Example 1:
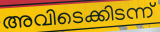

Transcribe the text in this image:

അവിടെക്കിടന്ന്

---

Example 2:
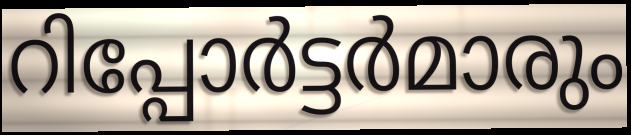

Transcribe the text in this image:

റിപ്പോർട്ടർമാരും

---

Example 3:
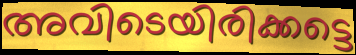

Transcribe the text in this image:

അവിടെയിരിക്കട്ടെ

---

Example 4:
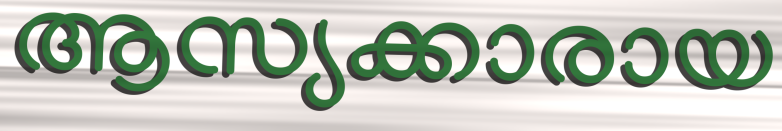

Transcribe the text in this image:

ആസ്യക്കാരായ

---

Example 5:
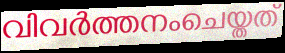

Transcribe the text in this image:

വിവർത്തനംചെയ്തത്